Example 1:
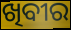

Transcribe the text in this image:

ଖିବୀର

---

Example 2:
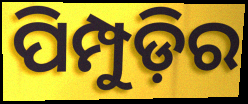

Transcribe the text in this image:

ପିମ୍ପୁଡ଼ିର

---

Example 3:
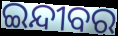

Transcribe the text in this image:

ଇନ୍ଦୀବର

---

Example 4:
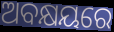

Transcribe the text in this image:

ଅବକ୍ଷୟରେ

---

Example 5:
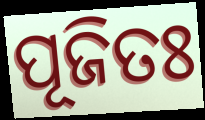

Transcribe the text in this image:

ପୂଜିତଃ